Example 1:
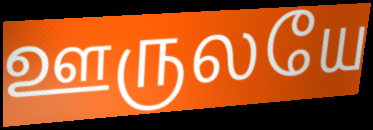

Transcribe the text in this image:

ஊருலயே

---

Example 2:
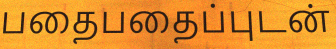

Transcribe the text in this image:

பதைபதைப்புடன்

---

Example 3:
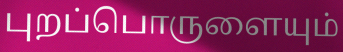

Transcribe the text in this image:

புறப்பொருளையும்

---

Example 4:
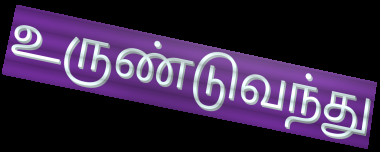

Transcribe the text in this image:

உருண்டுவந்து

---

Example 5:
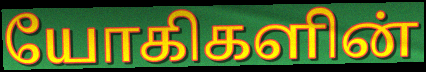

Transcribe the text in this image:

யோகிகளின்